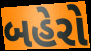
બહેરો